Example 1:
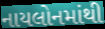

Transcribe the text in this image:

નાયલોનમાંથી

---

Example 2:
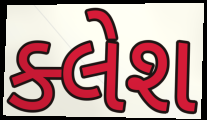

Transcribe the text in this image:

ક્લેશ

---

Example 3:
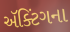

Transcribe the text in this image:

ઍક્ટિંગના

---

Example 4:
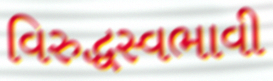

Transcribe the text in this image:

વિરુદ્ધસ્વભાવી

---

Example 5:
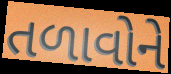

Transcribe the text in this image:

તળાવોને